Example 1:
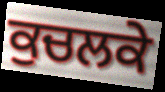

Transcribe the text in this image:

ਕੁਚਲਕੇ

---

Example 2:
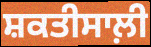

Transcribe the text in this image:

ਸ਼ਕਤੀਸਾਲ਼ੀ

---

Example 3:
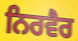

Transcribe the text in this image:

ਨਿਰਵੈਰ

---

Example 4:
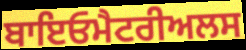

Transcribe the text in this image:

ਬਾਇਓਮੈਟਰੀਅਲਸ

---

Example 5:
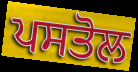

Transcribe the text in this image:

ਪਸਤੋਲ